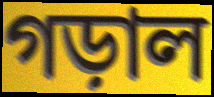
গড়াল